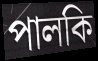
পালকি